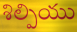
శిల్పియు